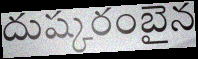
దుష్కరంబైన